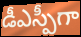
డీఎస్పీగా